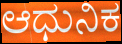
ಆಧುನಿಕ